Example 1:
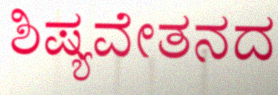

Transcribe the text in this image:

ಶಿಷ್ಯವೇತನದ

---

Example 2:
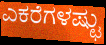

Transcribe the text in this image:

ಎಕರೆಗಳಷ್ಟು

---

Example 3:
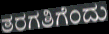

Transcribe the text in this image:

ತರಗತಿಗೆಂದು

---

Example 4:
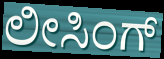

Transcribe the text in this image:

ಲೀಸಿಂಗ್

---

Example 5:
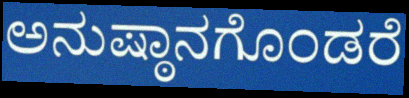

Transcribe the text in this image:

ಅನುಷ್ಠಾನಗೊಂಡರೆ